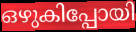
ഒഴുകിപ്പോയി